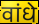
वांधे